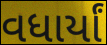
વધાર્યાં